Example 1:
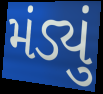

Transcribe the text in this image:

મંડ્યું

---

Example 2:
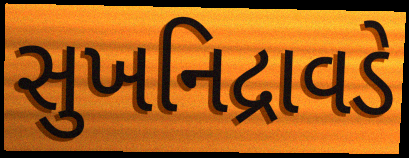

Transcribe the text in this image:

સુખનિદ્રાવડે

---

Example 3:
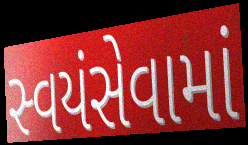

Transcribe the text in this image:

સ્વયંસેવામાં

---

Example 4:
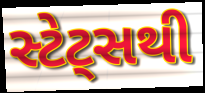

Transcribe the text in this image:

સ્ટેટ્સથી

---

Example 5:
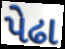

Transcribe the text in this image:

પેઢા